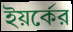
ইয়র্কের